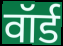
वॉर्ड